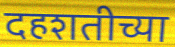
दहशतीच्या